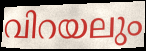
വിറയലും